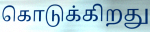
கொடுக்கிறது